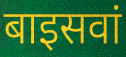
बाइसवां